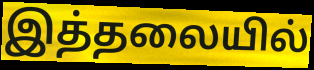
இத்தலையில்